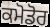
ਕਮੋਡੋਰ